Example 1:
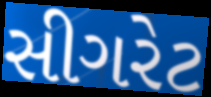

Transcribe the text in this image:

સીગરેટ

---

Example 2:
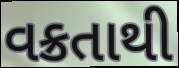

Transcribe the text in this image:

વક્રતાથી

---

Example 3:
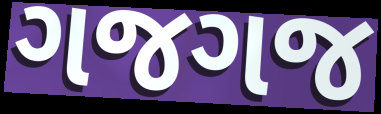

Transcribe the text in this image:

ગજગજ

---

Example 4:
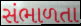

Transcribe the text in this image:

સંભાળતા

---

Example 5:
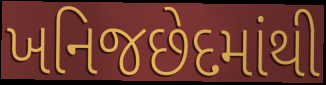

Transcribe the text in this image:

ખનિજછેદમાંથી